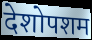
देशोपशम